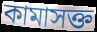
কামাসক্ত